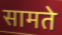
सामते